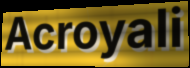
Acroyali